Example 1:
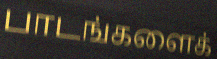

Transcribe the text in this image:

பாடங்களைக்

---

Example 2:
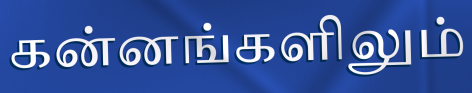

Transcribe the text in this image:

கன்னங்களிலும்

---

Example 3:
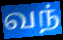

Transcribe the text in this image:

வந்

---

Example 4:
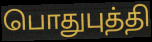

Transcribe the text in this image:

பொதுபுத்தி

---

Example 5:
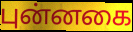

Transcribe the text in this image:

புன்னகை